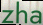
zha